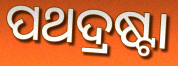
ପଥଦ୍ରଷ୍ଟା